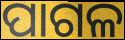
ପାଗଳ